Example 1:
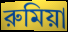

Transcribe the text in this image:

রুমিয়া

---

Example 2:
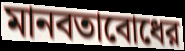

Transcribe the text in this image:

মানবতাবোধের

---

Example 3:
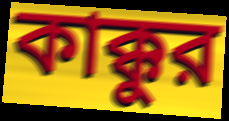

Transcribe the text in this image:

কাক্কুর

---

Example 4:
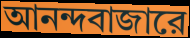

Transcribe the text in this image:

আনন্দবাজারে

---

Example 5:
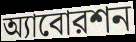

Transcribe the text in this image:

অ্যাবোরশন